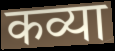
कव्या